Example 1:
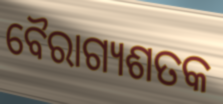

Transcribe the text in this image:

ବୈରାଗ୍ୟଶତକ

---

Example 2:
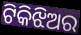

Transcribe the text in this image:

ଟିକିଝିଅର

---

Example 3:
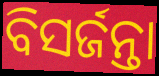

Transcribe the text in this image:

ବିସର୍ଜନ୍ତା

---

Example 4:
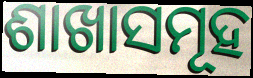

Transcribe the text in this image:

ଶାଖାସମୂହ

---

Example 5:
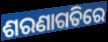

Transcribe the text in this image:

ଶରଣାଗତିରେ